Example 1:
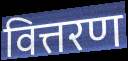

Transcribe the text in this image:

वित्तरण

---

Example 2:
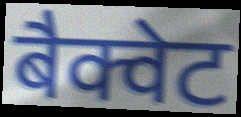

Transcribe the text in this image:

बैक्वेट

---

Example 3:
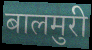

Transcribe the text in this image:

बालमुरी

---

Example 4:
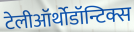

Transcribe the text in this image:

टेलीऑर्थोडॉन्टिक्स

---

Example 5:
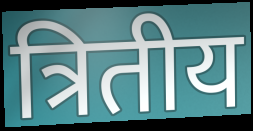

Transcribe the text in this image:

त्रितीय